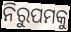
ନିରୁପମକୁ